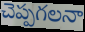
చెప్పగలనా